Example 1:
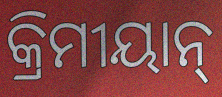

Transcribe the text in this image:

କ୍ରିମୀୟାନ୍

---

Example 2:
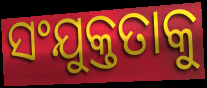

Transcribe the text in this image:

ସଂଯୁକ୍ତତାକୁ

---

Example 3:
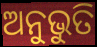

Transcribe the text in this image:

ଅନୁଭୁତି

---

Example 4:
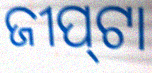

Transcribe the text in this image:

ଜୀପ୍‍ଟା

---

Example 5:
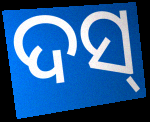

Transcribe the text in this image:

ଦସ୍